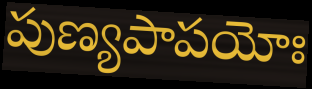
పుణ్యపాపయోః